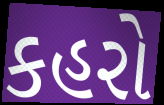
કહરો